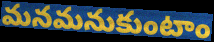
మనమనుకుంటాం